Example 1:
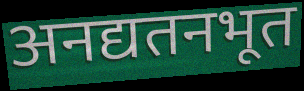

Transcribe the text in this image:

अनद्यतनभूत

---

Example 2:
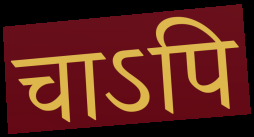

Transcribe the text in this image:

चाऽपि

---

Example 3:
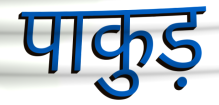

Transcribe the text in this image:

पाकुड़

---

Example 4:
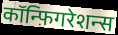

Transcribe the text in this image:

कॉन्फ़िगरेशन्स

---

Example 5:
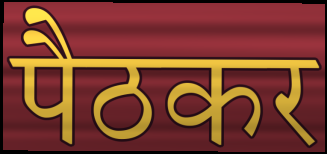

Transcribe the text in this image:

पैठकर